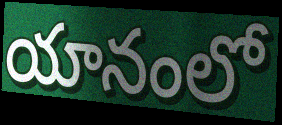
యానంలో